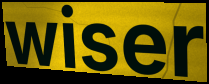
wiser